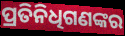
ପ୍ରତିନିଧିଗଣଙ୍କର